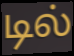
டில்